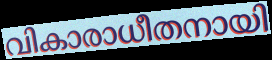
വികാരാധീതനായി